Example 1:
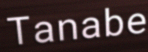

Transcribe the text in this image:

Tanabe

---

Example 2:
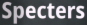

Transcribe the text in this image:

Specters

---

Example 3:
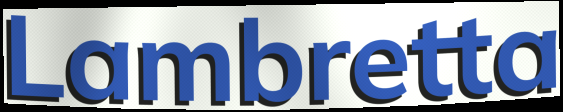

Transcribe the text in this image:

Lambretta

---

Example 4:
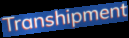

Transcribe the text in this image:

Transhipment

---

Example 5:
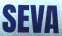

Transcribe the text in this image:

SEVA